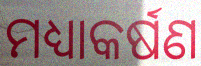
ମଧ୍ୟାକର୍ଷଣ